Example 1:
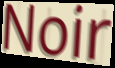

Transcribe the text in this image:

Noir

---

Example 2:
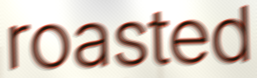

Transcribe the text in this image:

roasted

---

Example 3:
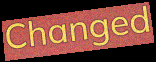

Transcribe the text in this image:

Changed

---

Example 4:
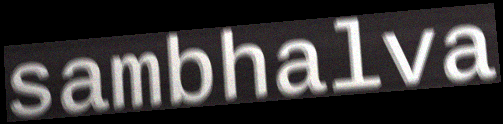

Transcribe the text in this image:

sambhalva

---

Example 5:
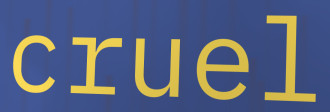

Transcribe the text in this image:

cruel